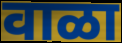
वाळा